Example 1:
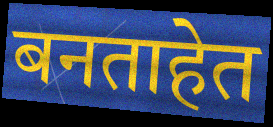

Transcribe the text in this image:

बनताहेत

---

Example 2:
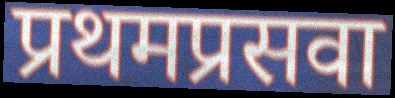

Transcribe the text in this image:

प्रथमप्रसवा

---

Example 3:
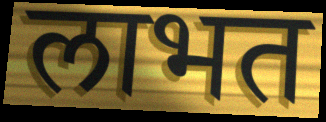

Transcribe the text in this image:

लाभत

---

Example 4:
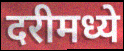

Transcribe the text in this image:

दरीमध्ये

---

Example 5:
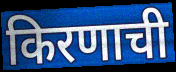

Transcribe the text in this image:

किरणाची